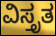
ವಿಸ್ತೃತ